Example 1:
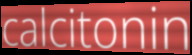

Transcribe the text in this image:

calcitonin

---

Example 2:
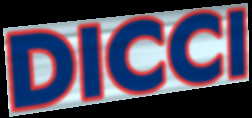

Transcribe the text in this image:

DICCI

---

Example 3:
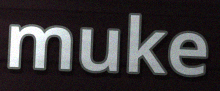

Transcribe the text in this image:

muke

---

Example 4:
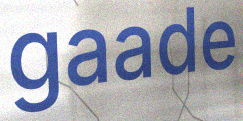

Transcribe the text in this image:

gaade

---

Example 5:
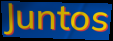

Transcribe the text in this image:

Juntos